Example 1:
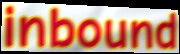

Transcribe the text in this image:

inbound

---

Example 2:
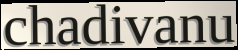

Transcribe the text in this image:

chadivanu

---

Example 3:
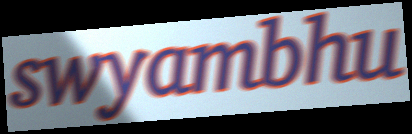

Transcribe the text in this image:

swyambhu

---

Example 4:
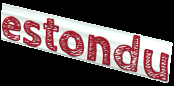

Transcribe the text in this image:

estondu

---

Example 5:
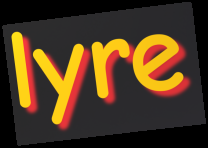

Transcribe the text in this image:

lyre